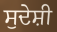
ਸੁਦੇਸ਼ੀ